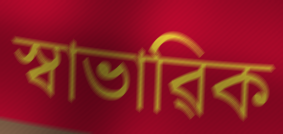
স্বাভাৱিক